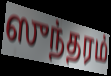
ஸுந்தரம்